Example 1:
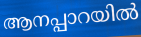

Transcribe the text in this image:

ആനപ്പാറയിൽ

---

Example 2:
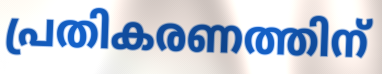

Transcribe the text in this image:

പ്രതികരണത്തിന്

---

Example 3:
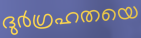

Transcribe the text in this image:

ദുർഗ്രഹതയെ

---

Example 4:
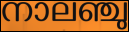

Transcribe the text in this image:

നാലഞ്ചു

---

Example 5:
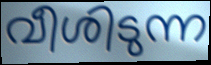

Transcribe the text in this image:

വീശിടുന്ന